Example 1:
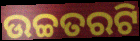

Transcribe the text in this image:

ଉଚ୍ଚତରଟି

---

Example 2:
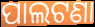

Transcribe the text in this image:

ପାଲଟଣା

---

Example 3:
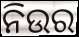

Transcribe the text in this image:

ନିଉର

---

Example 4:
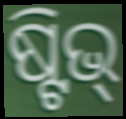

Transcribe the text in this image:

ଷ୍ଟିଭ୍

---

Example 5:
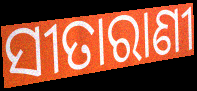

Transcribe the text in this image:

ସୀତାରାଣୀ